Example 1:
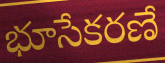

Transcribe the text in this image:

భూసేకరణే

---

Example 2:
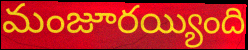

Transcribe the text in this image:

మంజూరయ్యింది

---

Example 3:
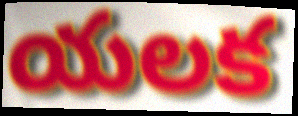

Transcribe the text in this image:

యలక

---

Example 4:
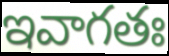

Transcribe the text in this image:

ఇవాగతః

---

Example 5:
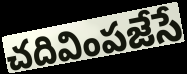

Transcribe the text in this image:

చదివింపజేసే